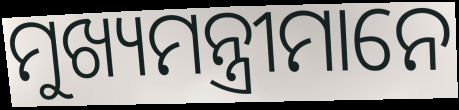
ମୁଖ୍ୟମନ୍ତ୍ରୀମାନେ